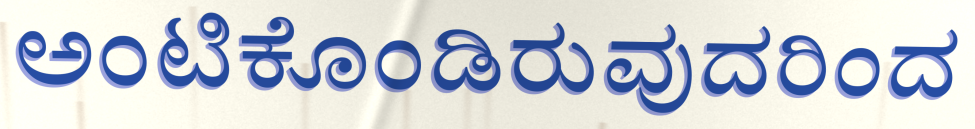
ಅಂಟಿಕೊಂಡಿರುವುದರಿಂದ